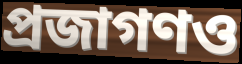
প্রজাগণও